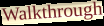
Walkthrough